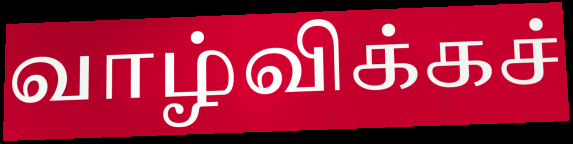
வாழ்விக்கச்